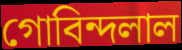
গোবিন্দলাল